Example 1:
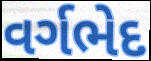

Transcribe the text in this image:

વર્ગભેદ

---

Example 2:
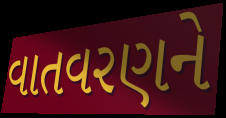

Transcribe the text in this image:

વાતવરણને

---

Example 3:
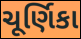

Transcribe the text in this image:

ચૂર્ણિકા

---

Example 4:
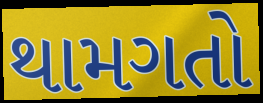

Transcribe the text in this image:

થામગતો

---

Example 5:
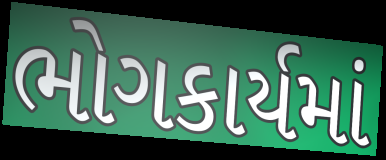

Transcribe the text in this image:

ભોગકાર્યમાં